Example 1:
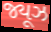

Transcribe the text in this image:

જ્યૂઝ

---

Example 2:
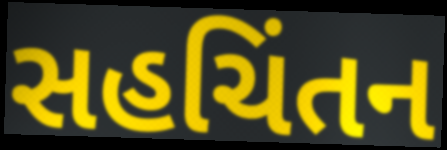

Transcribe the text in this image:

સહચિંતન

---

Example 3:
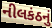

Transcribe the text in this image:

નીલકંઠનું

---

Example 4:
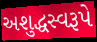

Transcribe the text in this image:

અશુદ્ધસ્વરૂપે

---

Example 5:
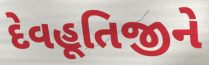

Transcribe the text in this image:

દેવહૂતિજીને